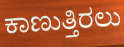
ಕಾಣುತ್ತಿರಲು